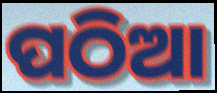
ପଠିଆ